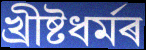
খ্ৰীষ্টধৰ্মৰ